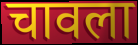
चावला